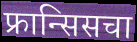
फ्रान्सिसचा